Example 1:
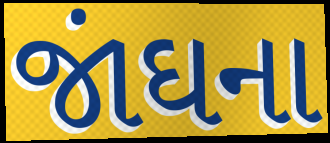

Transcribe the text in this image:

જાંઘના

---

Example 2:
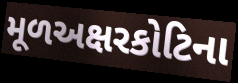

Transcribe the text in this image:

મૂળઅક્ષરકોટિના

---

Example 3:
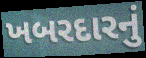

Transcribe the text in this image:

ખબરદારનું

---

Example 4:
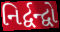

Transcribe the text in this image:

નિર્દ્વન્દ્વો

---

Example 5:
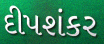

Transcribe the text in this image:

દીપશંકર